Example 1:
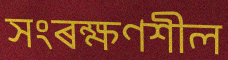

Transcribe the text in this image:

সংৰক্ষণশীল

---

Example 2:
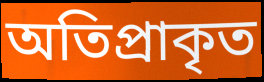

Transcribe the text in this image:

অতিপ্ৰাকৃত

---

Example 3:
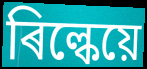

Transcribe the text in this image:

ৰিল্কেয়ে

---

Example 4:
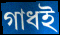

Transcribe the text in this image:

গাধই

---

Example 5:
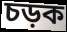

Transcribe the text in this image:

চড়ক